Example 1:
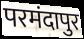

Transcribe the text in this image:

परमंदापुर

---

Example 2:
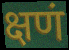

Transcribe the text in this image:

क्षणं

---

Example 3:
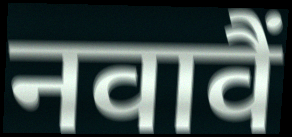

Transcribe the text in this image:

नवावैं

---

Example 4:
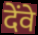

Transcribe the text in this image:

देंवे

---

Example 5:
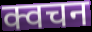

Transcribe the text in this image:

क्वचन